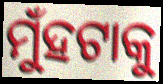
ମୁଁହଟାକୁ